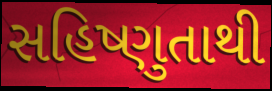
સહિષ્ણુતાથી